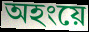
অহংয়ে